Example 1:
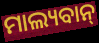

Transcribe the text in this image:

ମାଲ୍ୟବାନ୍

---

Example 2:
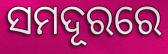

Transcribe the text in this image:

ସମଦୂରରେ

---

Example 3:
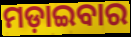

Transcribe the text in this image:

ମଡ଼ାଇବାର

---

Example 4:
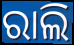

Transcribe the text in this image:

ରାଲି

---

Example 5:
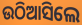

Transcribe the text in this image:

ଉଠିଆସିଲେ